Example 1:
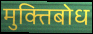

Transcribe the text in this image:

मुक्तिबोध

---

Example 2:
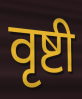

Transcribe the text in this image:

वृष्टी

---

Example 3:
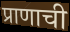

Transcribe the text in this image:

प्राणाची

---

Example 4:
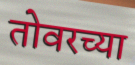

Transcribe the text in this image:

तोवरच्या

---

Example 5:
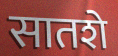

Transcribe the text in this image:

सातशे